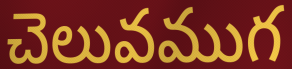
చెలువముగ